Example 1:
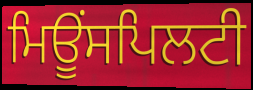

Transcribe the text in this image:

ਮਿਊਂਸਪਿਲਟੀ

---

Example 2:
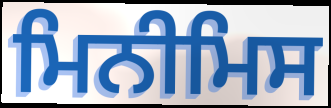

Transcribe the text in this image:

ਮਿਨੀਮਿਸ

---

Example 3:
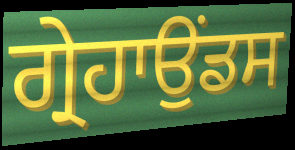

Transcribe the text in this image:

ਗ੍ਰੇਹਾਉਂਡਸ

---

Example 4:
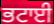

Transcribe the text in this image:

ਭਟਾਈ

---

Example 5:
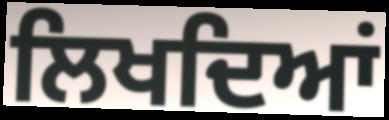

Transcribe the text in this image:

ਲਿਖਦਿਆਂ